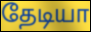
தேடியா